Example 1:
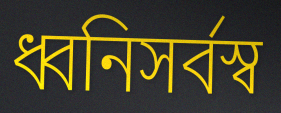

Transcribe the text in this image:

ধ্বনিসর্বস্ব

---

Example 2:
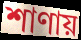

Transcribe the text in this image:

শাণায়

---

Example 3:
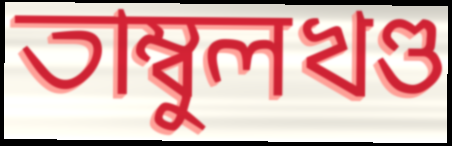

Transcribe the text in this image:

তাম্বুলখণ্ড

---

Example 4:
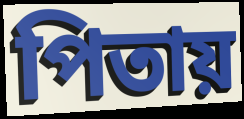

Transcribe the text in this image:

পিতায়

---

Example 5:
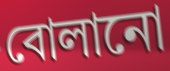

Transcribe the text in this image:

বোলানো